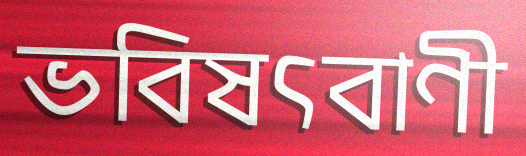
ভবিষৎবাণী